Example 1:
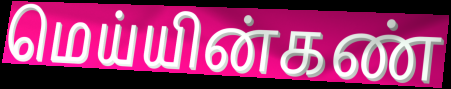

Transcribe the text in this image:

மெய்யின்கண்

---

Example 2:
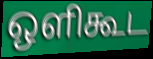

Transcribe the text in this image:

ஒளிகூட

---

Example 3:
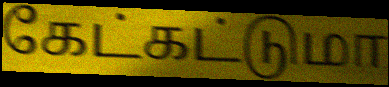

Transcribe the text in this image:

கேட்கட்டுமா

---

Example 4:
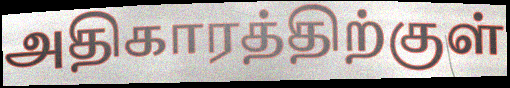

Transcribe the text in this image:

அதிகாரத்திற்குள்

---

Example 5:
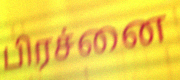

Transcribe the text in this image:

பிரச்னை